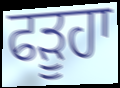
ਫੜੂਹਾ